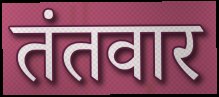
तंतवार